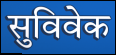
सुविवेक